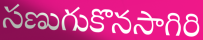
సణుగుకొనసాగిరి